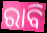
ରାବି